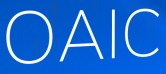
OAIC